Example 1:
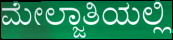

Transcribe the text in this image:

ಮೇಲ್ಜಾತಿಯಲ್ಲಿ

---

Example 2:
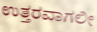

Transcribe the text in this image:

ಉತ್ತರವಾಗಲೀ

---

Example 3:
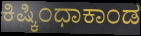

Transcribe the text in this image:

ಕಿಷ್ಕಿಂಧಾಕಾಂಡ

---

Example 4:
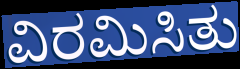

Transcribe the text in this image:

ವಿರಮಿಸಿತು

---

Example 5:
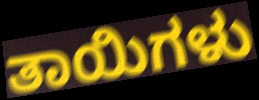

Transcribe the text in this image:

ತಾಯಿಗಳು